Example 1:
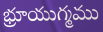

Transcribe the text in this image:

భ్రూయుగ్మము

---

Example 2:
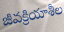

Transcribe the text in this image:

జీవక్రియాశీల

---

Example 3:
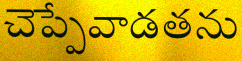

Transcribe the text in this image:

చెప్పేవాడతను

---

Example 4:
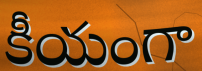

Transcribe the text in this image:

కీయంగా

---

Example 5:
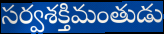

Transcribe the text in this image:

సర్వశక్తిమంతుడు